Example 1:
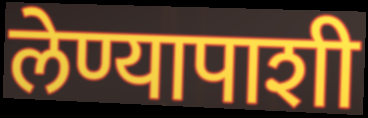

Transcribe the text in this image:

लेण्यापाशी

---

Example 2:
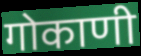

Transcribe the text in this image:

गोकाणी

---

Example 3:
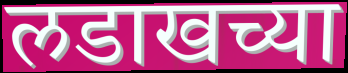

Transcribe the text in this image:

लडाखच्या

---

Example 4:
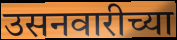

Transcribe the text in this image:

उसनवारीच्या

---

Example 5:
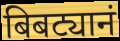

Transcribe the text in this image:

बिबट्यानं